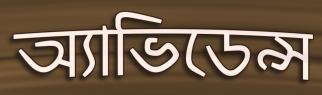
অ্যাভিডেন্স